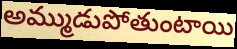
అమ్ముడుపోతుంటాయి